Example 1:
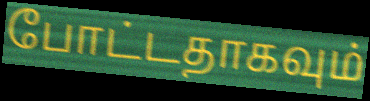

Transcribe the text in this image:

போட்டதாகவும்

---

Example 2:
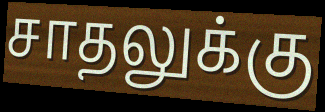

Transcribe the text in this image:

சாதலுக்கு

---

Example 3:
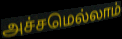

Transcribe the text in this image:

அச்சமெல்லாம்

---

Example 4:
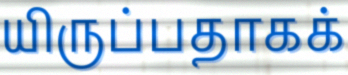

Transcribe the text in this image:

யிருப்பதாகக்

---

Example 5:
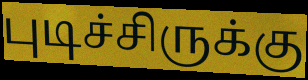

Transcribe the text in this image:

புடிச்சிருக்கு